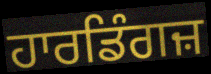
ਹਾਰਡਿੰਗਜ਼